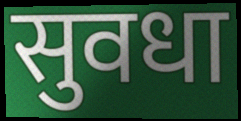
सुवधा